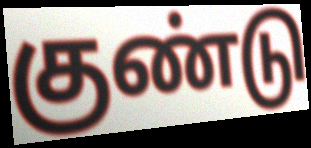
குண்டு